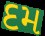
દમ